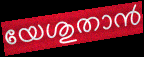
യേശുതാൻ